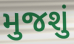
મુજશું